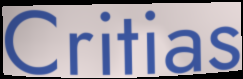
Critias